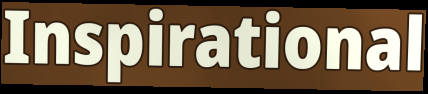
Inspirational